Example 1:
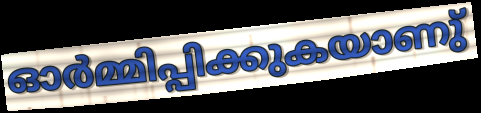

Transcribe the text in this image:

ഓർമ്മിപ്പിക്കുകയാണു്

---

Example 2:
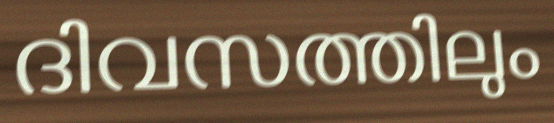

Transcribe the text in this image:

ദിവസത്തിലും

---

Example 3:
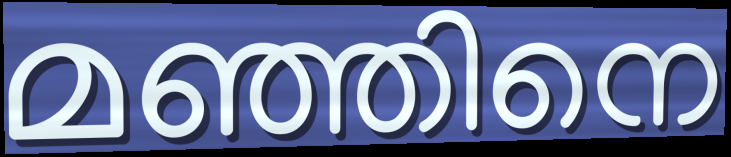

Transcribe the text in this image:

മഞ്ഞിനെ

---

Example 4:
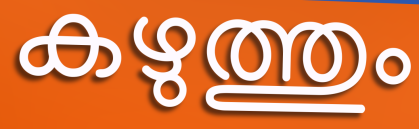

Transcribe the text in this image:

കഴുത്തും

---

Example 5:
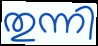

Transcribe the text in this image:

തുന്നി